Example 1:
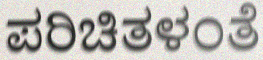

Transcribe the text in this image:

ಪರಿಚಿತಳಂತೆ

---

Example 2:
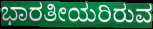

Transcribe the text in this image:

ಭಾರತೀಯರಿರುವ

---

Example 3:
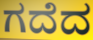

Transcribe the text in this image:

ಗದೆದ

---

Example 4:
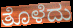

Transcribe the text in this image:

ತೊಳೆದು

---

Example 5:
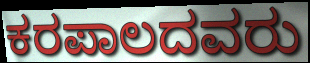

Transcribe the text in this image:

ಕರಪಾಲದವರು